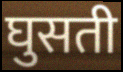
घुसती